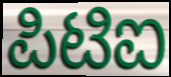
ಪಿಟಿಐ